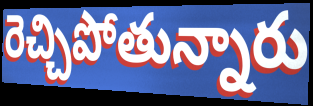
రెచ్చిపోతున్నారు